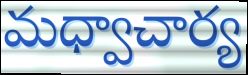
మధ్వాచార్య